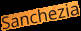
Sanchezia